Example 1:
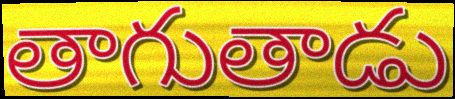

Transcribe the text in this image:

తాగుతాడు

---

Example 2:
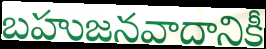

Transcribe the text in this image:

బహుజనవాదానికీ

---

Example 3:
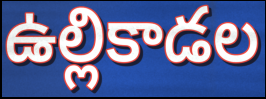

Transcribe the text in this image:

ఉల్లికాడల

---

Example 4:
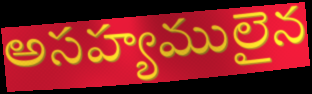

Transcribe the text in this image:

అసహ్యములైన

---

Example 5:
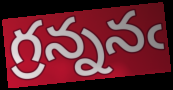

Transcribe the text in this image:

గ్రన్ననఁ